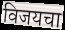
विजयचा